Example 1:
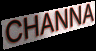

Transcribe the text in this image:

CHANNA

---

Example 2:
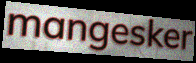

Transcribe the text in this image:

mangesker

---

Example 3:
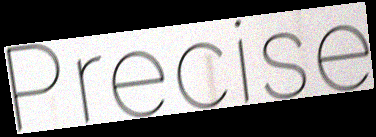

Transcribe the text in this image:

Precise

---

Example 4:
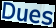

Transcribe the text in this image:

Dues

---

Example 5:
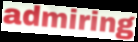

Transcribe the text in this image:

admiring